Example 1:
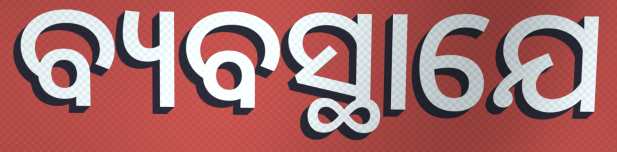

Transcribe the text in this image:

ବ୍ୟବସ୍ଥାଯେ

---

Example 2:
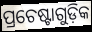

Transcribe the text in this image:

ପ୍ରଚେଷ୍ଟାଗୁଡ଼ିକ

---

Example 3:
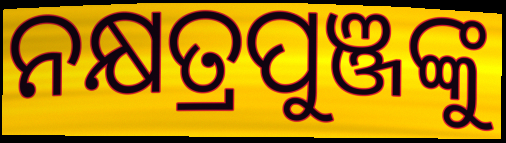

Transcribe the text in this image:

ନକ୍ଷତ୍ରପୁଞ୍ଜଙ୍କୁ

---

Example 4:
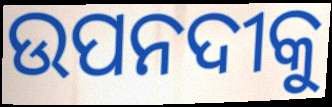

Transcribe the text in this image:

ଉପନଦୀକୁ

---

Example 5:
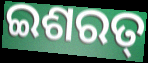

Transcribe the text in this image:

ଇଶରତ୍